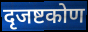
दृजष्टकोण